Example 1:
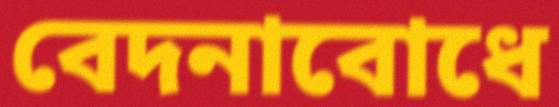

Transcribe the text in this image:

বেদনাবোধে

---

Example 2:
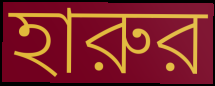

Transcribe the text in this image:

হারুর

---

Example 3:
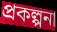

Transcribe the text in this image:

প্রকল্পনা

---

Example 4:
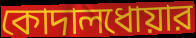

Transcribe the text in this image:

কোদালধোয়ার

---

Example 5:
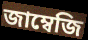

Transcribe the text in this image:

জাম্বেজি